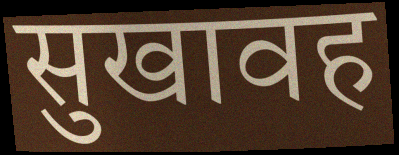
सुखावह